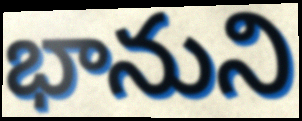
భానుని